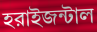
হরাইজন্টাল